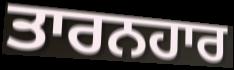
ਤਾਰਨਹਾਰ